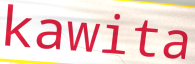
kawita